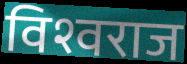
विश्वराज